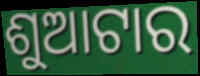
ଶୁଆଟାର